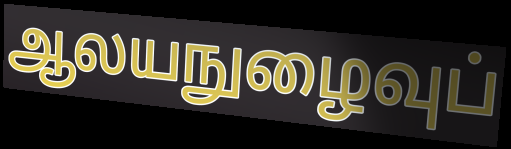
ஆலயநுழைவுப்